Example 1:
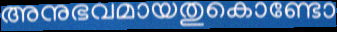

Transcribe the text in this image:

അനുഭവമായതുകൊണ്ടോ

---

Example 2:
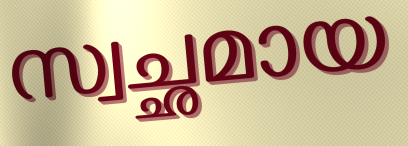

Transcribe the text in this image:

സ്വച്ഛമായ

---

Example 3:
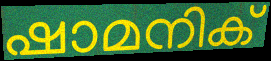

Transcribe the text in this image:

ഷാമനിക്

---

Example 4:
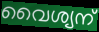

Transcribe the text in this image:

വൈശ്യന്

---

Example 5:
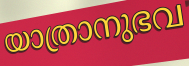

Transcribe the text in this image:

യാത്രാനുഭവ